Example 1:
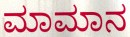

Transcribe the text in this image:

ಮಾಮಾನ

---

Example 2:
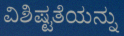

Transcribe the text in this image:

ವಿಶಿಷ್ಟತೆಯನ್ನು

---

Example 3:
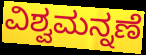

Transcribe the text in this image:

ವಿಶ್ವಮನ್ನಣೆ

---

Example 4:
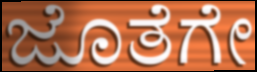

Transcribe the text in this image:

ಜೊತೆಗೇ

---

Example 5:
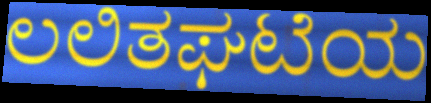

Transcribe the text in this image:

ಲಲಿತಘಟೆಯ